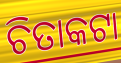
ଚିତାକଟା